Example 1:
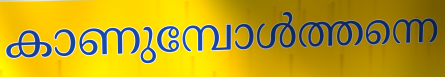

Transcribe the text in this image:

കാണുമ്പോൾത്തന്നെ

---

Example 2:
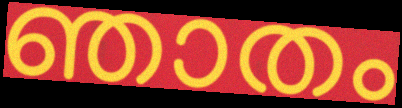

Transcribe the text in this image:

ഞാതം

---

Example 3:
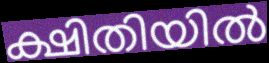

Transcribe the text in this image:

ക്ഷിതിയിൽ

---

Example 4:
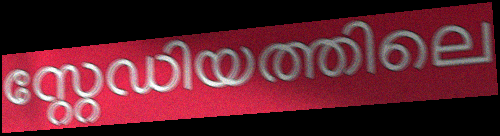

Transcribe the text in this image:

സ്റ്റേഡിയത്തിലെ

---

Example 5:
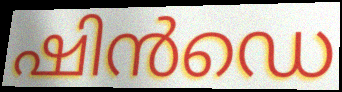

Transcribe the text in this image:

ഷിൻഡെ